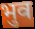
भुव